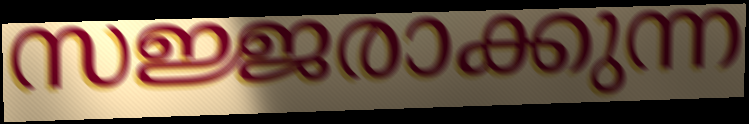
സജ്ജരാക്കുന്ന